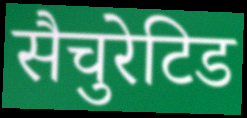
सैचुरेटिड